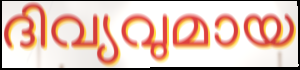
ദിവ്യവുമായ